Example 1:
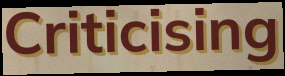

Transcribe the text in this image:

Criticising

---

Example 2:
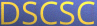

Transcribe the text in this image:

DSCSC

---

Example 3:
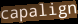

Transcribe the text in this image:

capalign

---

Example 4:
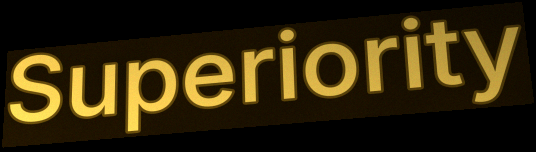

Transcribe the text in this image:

Superiority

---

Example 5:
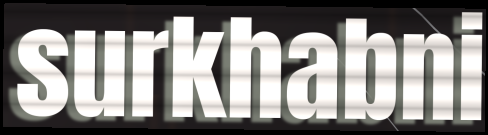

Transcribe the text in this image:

surkhabni